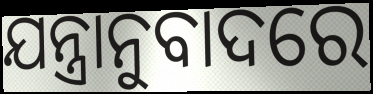
ଯନ୍ତ୍ରାନୁବାଦରେ